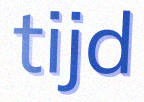
tijd